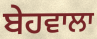
ਬੇਹਵਾਲਾ